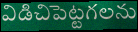
విడిచిపెట్టగలను